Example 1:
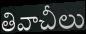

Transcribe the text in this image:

తివాచీలు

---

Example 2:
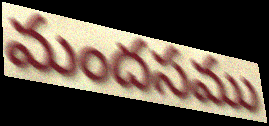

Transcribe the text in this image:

మందసము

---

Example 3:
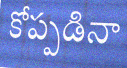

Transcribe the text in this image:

కోప్పడినా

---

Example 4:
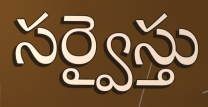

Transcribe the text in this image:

సర్వైస్తు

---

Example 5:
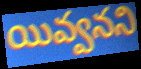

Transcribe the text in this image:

యివ్వనని